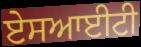
ਏਸਆਈਟੀ